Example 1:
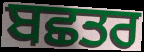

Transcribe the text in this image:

ਬਛਤਰ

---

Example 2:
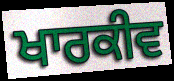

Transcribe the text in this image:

ਖਾਰਕੀਵ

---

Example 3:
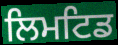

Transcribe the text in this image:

ਲਿਮਟਿਡ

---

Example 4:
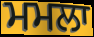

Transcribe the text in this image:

ਮਮਲਾ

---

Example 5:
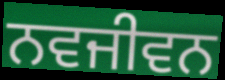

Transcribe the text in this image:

ਨਵਜੀਵਨ